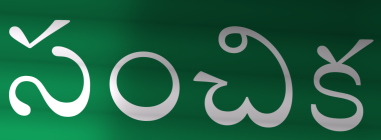
సంచిక